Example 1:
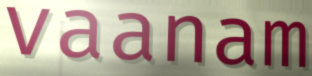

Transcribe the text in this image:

vaanam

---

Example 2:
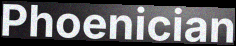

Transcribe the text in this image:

Phoenician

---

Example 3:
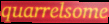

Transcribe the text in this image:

quarrelsome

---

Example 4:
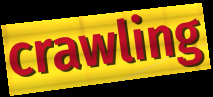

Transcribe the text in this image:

crawling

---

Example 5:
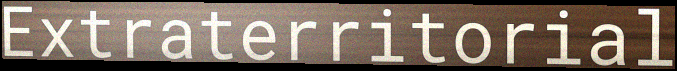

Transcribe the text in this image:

Extraterritorial